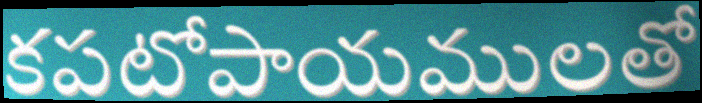
కపటోపాయములతో